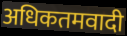
अधिकतमवादी